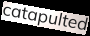
catapulted